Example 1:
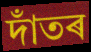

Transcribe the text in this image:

দাঁতৰ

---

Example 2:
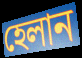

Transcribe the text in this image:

হেলান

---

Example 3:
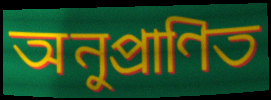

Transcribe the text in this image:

অনুপ্ৰাণিত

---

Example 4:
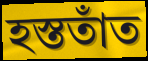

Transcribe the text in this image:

হস্ততাঁত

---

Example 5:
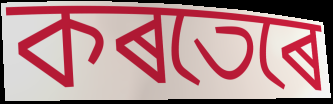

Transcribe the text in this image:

কৰতেৰে